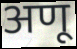
अणू